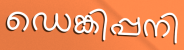
ഡെങ്കിപ്പനി